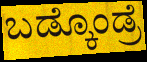
ಬಡ್ಕೊಂಡ್ರೆ